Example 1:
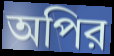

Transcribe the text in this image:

অপির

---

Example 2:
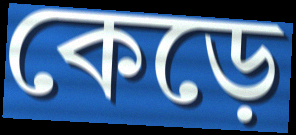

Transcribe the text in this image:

কেড়ে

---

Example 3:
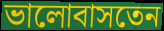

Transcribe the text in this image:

ভালোবাসতেন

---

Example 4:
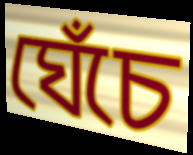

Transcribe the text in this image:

ঘেঁচে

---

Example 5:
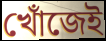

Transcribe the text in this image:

খোঁজেই